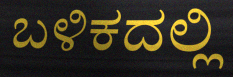
ಬಳಿಕದಲ್ಲಿ